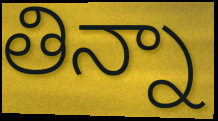
తిన్నా